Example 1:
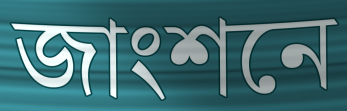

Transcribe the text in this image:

জাংশনে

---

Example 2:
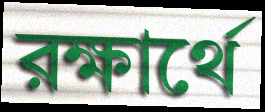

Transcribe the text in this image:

রক্ষার্থে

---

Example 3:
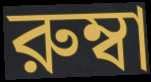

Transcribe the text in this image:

রুম্বা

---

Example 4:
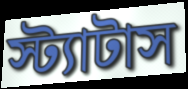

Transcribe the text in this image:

স্ট্যাটাস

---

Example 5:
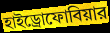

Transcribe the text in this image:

হাইড্রোফোবিয়ার